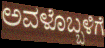
ಅವಳೊಬ್ಬಳಿಗೆ